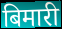
बिमारी